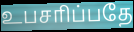
உபசரிப்பதே